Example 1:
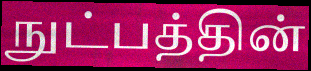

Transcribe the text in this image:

நுட்பத்தின்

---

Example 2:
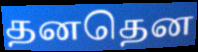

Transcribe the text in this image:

தனதென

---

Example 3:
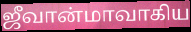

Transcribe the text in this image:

ஜீவான்மாவாகிய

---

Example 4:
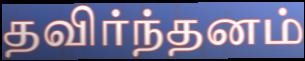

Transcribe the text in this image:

தவிர்ந்தனம்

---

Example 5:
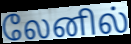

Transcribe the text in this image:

லேனில்